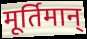
मूर्तिमान्